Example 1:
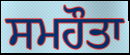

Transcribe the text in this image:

ਸਮਹੌਤਾ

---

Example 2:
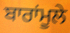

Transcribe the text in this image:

ਬਾਰਾਂਮੂਲੇ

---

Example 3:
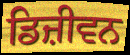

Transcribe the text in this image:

ਡਿਜ਼ੀਵਨ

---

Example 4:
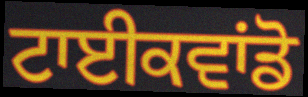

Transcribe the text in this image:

ਟਾਈਕਵਾਂਡੋ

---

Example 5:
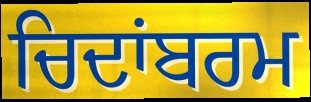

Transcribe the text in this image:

ਚਿਦਾਂਬਰਮ